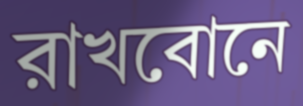
রাখবোনে